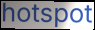
hotspot